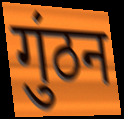
गुंठन